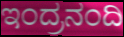
ಇಂದ್ರನಂದಿ